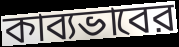
কাব্যভাবের